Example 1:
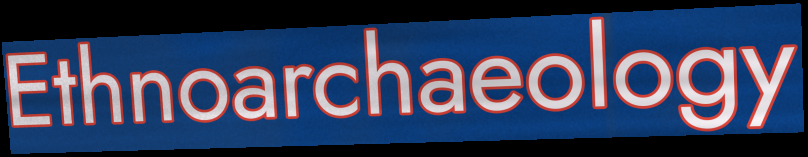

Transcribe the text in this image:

Ethnoarchaeology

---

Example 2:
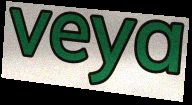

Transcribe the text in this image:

veya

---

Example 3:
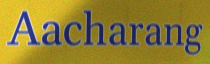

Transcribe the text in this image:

Aacharang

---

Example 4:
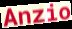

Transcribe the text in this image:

Anzio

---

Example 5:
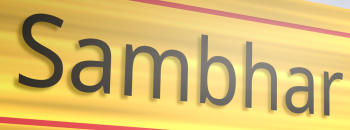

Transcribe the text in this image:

Sambhar